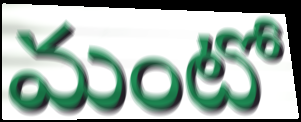
మంటో